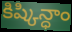
కిష్కిన్ధాం